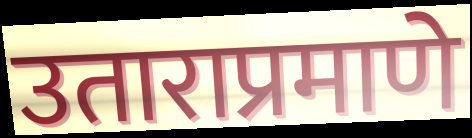
उताराप्रमाणे